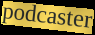
podcaster